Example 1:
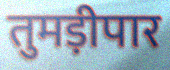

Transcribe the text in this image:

तुमड़ीपार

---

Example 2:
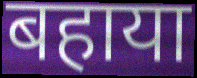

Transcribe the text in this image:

बहाया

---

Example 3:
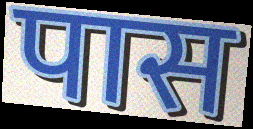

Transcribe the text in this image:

पास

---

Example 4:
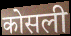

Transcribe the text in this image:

कोसली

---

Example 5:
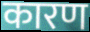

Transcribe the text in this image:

कारण